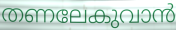
തണലേകുവാൻ